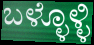
ಬಳ್ಳೊಳ್ಳಿ